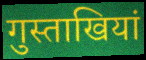
गुस्ताखियां